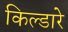
किल्डारे